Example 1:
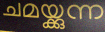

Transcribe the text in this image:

ചമയ്ക്കുന്ന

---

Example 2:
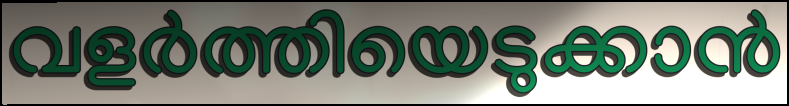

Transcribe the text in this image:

വളർത്തിയെടുക്കാൻ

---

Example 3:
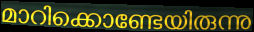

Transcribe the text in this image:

മാറിക്കൊണ്ടേയിരുന്നു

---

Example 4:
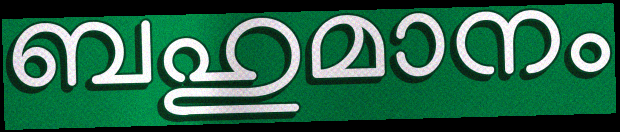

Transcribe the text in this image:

ബഹുമാനം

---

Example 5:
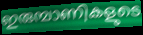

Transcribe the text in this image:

ഇരുമ്പാണികളുടെ